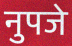
नुपजे